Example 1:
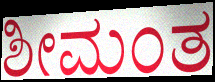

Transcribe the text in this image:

ಶೀಮಂತ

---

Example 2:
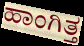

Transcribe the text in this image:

ಹಾಂಗಿತ್ತ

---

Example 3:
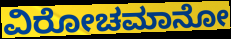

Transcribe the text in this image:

ವಿರೋಚಮಾನೋ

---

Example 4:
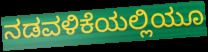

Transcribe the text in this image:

ನಡವಳಿಕೆಯಲ್ಲಿಯೂ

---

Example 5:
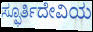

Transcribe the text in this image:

ಸ್ಫೂರ್ತಿದೇವಿಯ